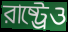
রাষ্ট্রেও